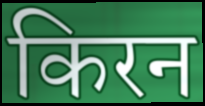
किरन